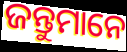
ଜନ୍ତୁମାନେ